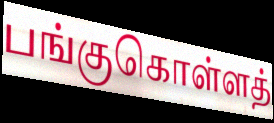
பங்குகொள்ளத்